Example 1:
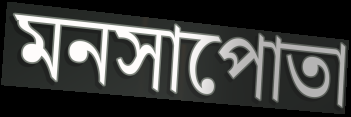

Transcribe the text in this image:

মনসাপোতা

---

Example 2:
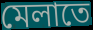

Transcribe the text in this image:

মেলাতে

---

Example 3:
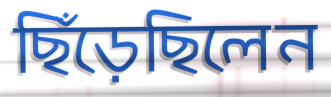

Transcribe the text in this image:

ছিঁড়েছিলেন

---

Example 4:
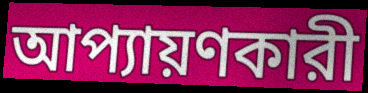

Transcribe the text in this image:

আপ্যায়ণকারী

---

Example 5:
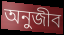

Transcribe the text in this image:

অনুজীব